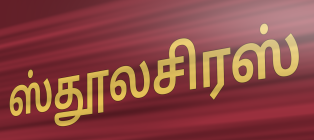
ஸ்தூலசிரஸ்